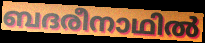
ബദരീനാഥിൽ